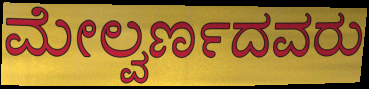
ಮೇಲ್ವರ್ಣದವರು